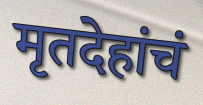
मृतदेहांचं